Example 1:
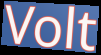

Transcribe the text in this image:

Volt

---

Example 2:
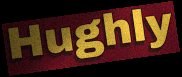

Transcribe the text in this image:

Hughly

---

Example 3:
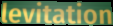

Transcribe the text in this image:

levitation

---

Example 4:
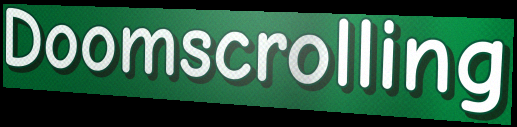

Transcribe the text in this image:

Doomscrolling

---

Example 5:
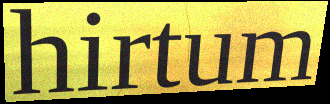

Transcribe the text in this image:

hirtum